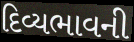
દિવ્યભાવની